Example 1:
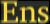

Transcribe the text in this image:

Ens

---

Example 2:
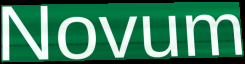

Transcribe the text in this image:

Novum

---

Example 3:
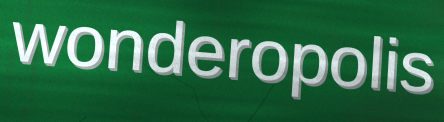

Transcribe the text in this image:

wonderopolis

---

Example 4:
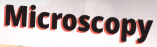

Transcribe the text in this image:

Microscopy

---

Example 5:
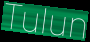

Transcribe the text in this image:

Tulun